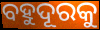
ବହୁଦୂରକୁ